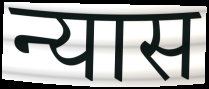
न्यास